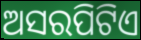
ଅସରପିଟିଏ